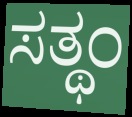
ಸತ್ಥಂ